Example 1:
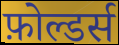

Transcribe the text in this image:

फ़ोल्डर्स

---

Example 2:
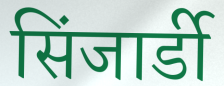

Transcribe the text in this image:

सिंजार्डी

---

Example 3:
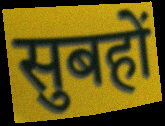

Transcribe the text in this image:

सुबहों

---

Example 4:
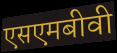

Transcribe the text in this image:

एसएमबीवी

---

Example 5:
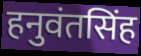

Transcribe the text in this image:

हनुवंतसिंह